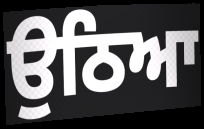
ਉਠਿਆ